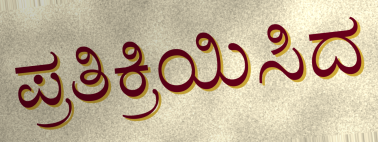
ಪ್ರತಿಕ್ರಿಯಿಸಿದ